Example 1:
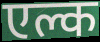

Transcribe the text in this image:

एल्क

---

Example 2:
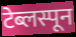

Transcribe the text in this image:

टेब्लस्पून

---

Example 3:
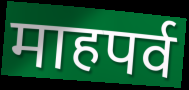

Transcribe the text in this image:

माहपर्व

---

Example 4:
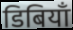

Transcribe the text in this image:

डिबियाँ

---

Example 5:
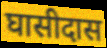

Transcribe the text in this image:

घासीदास